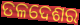
ତଳଦେଶର